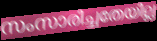
സംസാരിച്ചതേയില്ല